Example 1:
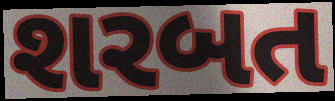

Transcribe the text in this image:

શરબત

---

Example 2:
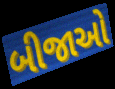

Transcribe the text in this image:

બીજાઓ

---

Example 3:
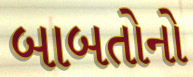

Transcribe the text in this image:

બાબતોનો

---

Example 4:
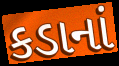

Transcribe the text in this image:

કડાનાં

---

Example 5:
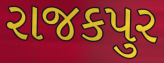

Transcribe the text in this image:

રાજકપુર